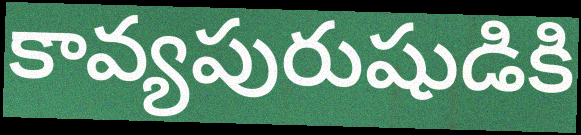
కావ్యపురుషుడికి